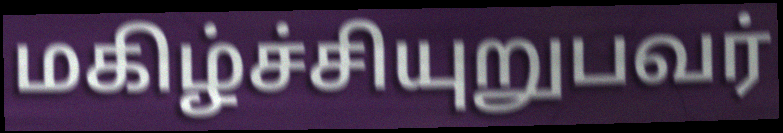
மகிழ்ச்சியுறுபவர்